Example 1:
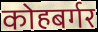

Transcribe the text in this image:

कोहबर्गर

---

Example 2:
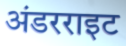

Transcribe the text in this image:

अंडरराइट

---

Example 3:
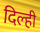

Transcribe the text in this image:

दिल्ही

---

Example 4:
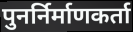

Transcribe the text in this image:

पुनर्निर्माणकर्ता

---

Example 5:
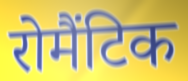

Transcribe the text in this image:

रोमैंटिक